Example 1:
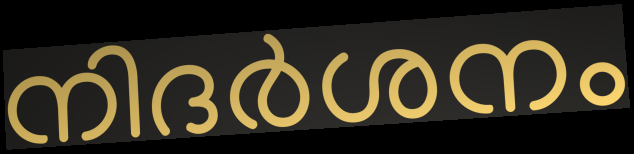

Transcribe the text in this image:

നിദർശനം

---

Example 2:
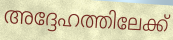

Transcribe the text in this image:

അദ്ദേഹത്തിലേക്ക്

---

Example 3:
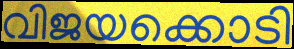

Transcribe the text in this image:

വിജയക്കൊടി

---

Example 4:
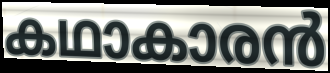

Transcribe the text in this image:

കഥാകാരൻ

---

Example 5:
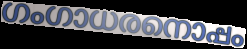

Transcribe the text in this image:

ഗംഗാധരനൊപ്പം